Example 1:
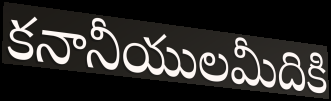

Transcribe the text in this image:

కనానీయులమీదికి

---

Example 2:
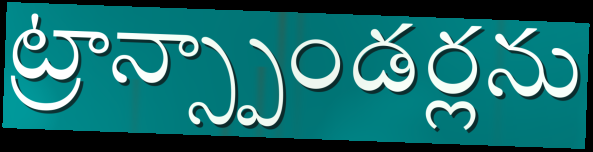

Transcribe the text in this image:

ట్రాన్స్పాండర్లను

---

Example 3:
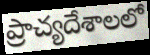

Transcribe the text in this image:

ప్రాచ్యదేశాలలో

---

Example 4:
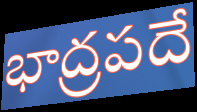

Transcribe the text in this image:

భాద్రపదే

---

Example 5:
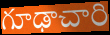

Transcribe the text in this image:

గూఢాచారి